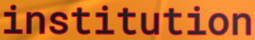
institution